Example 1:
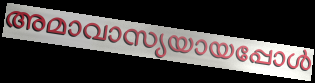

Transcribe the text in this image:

അമാവാസ്യയായപ്പോൾ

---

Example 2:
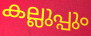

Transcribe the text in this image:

കല്ലുപ്പും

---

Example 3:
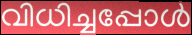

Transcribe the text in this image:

വിധിച്ചപ്പോൾ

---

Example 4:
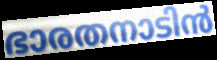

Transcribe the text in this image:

ഭാരതനാടിൻ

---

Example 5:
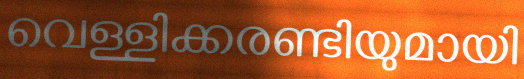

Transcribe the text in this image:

വെള്ളിക്കരണ്ടിയുമായി